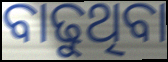
ବାଢୁଥିବା